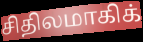
சிதிலமாகிக்